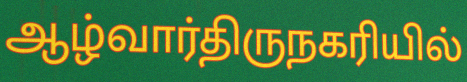
ஆழ்வார்திருநகரியில்